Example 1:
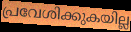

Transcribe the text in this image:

പ്രവേശിക്കുകയില്ല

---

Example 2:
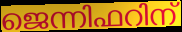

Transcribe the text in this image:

ജെന്നിഫറിന്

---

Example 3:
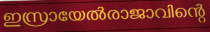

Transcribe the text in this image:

ഇസ്രായേൽരാജാവിന്റെ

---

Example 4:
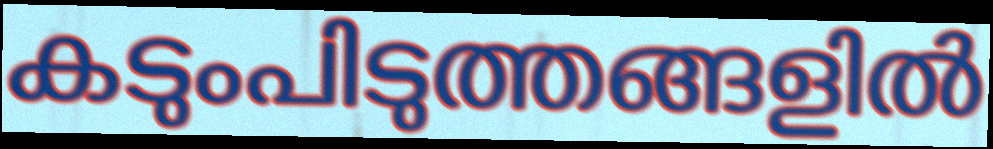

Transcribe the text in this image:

കടുംപിടുത്തങ്ങളിൽ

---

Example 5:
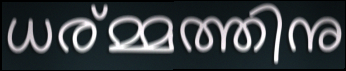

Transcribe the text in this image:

ധര്മ്മത്തിനു